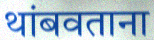
थांबवताना